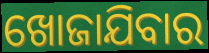
ଖୋଜାଯିବାର